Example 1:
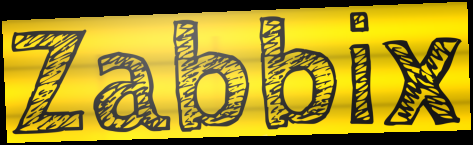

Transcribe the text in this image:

Zabbix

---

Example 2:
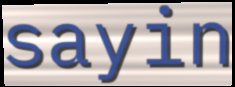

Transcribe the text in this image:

sayin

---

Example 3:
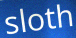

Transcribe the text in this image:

sloth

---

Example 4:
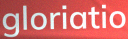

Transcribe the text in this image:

gloriatio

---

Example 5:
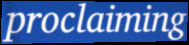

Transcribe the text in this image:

proclaiming